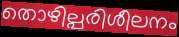
തൊഴില്പരിശീലനം